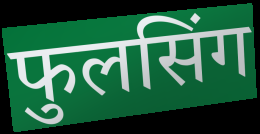
फुलसिंग